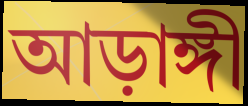
আড়াঙ্গী